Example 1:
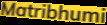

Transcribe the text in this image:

Matribhumi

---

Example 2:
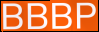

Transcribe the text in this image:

BBBP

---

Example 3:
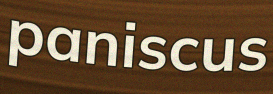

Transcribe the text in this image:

paniscus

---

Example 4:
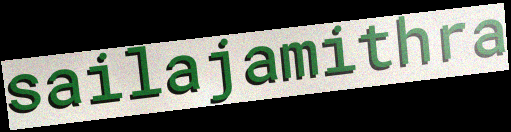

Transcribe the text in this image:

sailajamithra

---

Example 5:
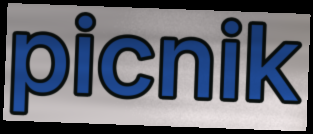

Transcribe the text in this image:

picnik